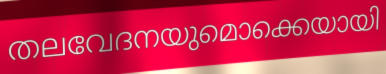
തലവേദനയുമൊക്കെയായി